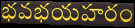
భవభయహరం